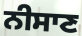
ਨੀਸਾਣ